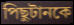
পিছুটানকে